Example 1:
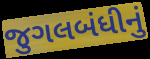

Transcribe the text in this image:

જુગલબંધીનું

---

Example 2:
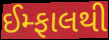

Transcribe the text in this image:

ઈમ્ફાલથી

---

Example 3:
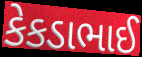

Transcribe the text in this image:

કેકડાભાઈ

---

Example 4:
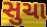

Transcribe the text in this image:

સુચા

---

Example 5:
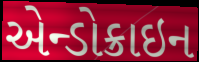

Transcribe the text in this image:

એન્ડોક્રાઇન